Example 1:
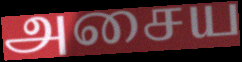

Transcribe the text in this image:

அசைய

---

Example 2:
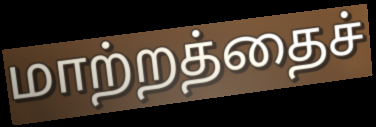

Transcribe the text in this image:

மாற்றத்தைச்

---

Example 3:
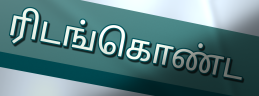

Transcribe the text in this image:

ரிடங்கொண்ட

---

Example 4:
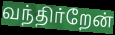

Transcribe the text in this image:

வந்திர்றேன்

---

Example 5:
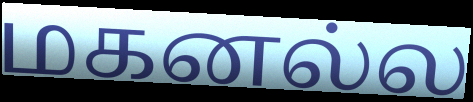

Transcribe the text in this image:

மகனல்ல